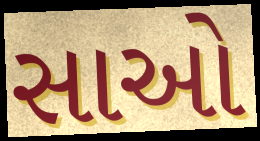
સાઓ